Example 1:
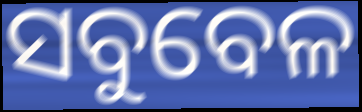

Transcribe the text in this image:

ସବୁବେଳ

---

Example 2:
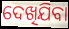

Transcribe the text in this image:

ଦେଖିଯିବା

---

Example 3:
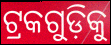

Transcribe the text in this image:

ଟ୍ରକଗୁଡ଼ିକୁ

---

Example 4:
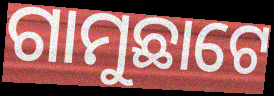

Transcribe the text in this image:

ଗାମୁଛାଟେ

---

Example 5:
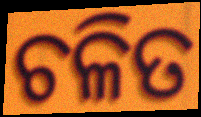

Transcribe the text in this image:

ଚଳିତ